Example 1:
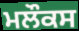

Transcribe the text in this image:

ਮਲੌਕਸ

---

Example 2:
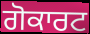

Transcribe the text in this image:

ਗੋਕਾਰਟ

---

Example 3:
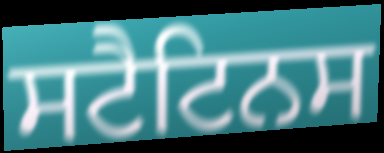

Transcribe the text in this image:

ਸਟੈਟਿਨਸ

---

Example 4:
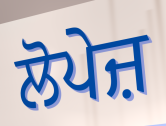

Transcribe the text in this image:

ਲੋਪੇਜ਼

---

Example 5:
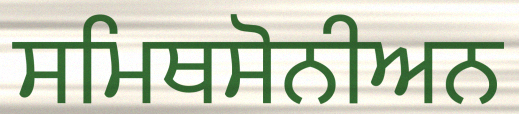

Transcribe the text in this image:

ਸਮਿਥਸੋਨੀਅਨ